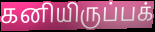
கனியிருப்பக்